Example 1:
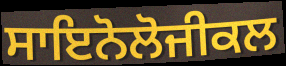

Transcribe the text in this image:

ਸਾਇਨੋਲੋਜੀਕਲ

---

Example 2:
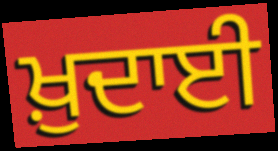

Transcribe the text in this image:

ਖ਼ੁਦਾਈ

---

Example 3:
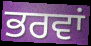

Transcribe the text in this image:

ਭਰਵਾਂ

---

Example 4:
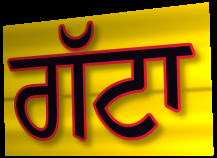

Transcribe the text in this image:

ਗੱਟਾ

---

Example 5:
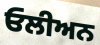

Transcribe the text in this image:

ਓਲੀਅਨ